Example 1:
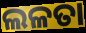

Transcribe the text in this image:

ଲଳତା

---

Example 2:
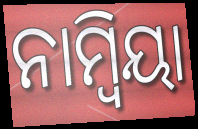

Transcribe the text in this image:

ନାମ୍ୱିୟା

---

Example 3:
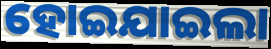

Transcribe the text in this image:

ହୋଇଯାଇଲା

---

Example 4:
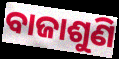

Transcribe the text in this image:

ବାଜାଶୁଣି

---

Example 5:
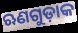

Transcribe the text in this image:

ଋଣଗୁଡ଼ାକ